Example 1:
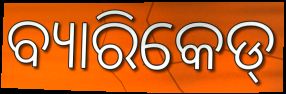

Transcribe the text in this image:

ବ୍ୟାରିକେଡ୍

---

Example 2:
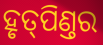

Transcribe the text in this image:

ହୃତ୍‌ପିଣ୍ତର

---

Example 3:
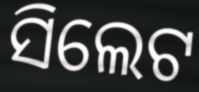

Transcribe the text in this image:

ସିଲେଟ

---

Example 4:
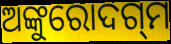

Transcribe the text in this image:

ଅଙ୍କୁରୋଦଗ୍‌ମ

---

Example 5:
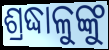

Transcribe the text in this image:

ଶ୍ରଦ୍ଧାଳୁଙ୍କୁ